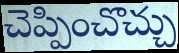
చెప్పించొచ్చు